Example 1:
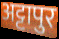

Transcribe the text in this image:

अट्टापुर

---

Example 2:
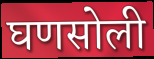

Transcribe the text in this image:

घणसोली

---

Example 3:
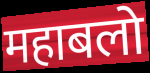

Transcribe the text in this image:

महाबलो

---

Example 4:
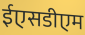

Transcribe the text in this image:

ईएसडीएम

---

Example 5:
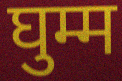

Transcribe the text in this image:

घुम्म